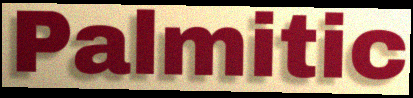
Palmitic